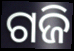
ଗଜି